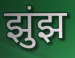
झुंझ